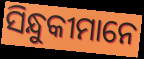
ସିନ୍ଧୁକୀମାନେ